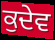
ਕੁਦੇਵ